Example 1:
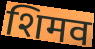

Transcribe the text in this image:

शिमव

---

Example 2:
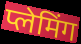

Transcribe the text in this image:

प्लेमिंग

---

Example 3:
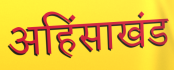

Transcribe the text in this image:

अहिंसाखंड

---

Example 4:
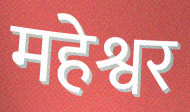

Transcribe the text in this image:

महेश्वर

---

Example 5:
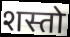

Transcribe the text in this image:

शस्तो